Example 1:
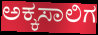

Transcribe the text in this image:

ಅಕ್ಕಸಾಲಿಗ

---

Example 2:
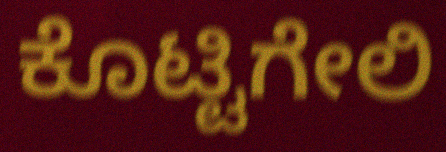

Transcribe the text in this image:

ಕೊಟ್ಟಿಗೇಲಿ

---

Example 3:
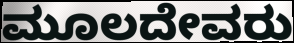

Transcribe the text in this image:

ಮೂಲದೇವರು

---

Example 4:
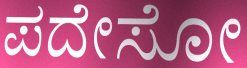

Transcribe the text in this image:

ಪದೇಸೋ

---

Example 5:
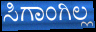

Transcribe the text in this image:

ಸಿಗಾಂಗಿಲ್ಲ